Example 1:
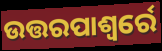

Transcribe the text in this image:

ଉତ୍ତରପାଶ୍ୱର୍ରେ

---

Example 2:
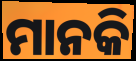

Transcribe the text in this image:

ମାନକି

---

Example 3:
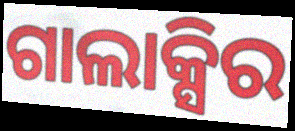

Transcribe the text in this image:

ଗାଲାକ୍ସିର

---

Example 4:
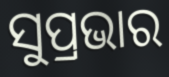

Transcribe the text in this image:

ସୁପ୍ରଭାର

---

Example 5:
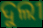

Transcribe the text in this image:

ଦୁଲୀ